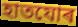
হাতযোৰ